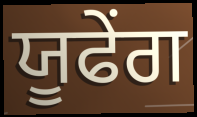
ਯੂਫੇਂਗ